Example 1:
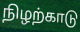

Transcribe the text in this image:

நிழற்காடு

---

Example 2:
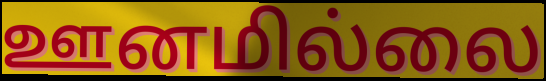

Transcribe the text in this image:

ஊனமில்லை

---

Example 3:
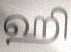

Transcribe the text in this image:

ஹி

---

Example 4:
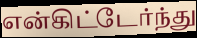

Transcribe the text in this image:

என்கிட்டேர்ந்து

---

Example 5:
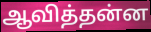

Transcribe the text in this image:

ஆவித்தன்ன